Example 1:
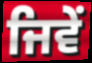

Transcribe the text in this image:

ਜਿਵੇੰ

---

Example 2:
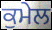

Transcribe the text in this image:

ਕੁਮੇਲ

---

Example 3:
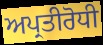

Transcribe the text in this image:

ਅਪ੍ਰਤੀਰੋਧੀ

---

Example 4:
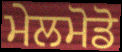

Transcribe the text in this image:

ਮੇਲਮੋਡੋ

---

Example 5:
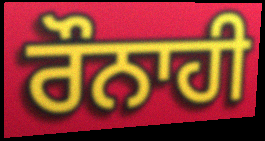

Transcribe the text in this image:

ਰੌਨਾਹੀ